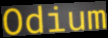
Odium